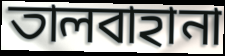
তালবাহানা